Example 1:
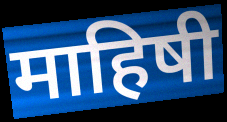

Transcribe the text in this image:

माहिषी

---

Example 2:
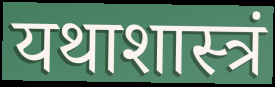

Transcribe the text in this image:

यथाशास्त्रं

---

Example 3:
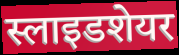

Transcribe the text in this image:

स्लाइडशेयर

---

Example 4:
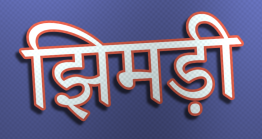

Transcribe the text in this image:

झिमड़ी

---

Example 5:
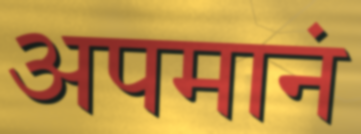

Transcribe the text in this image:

अपमानं